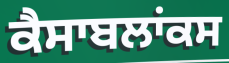
ਕੈਸਾਬਲਾਂਕਸ